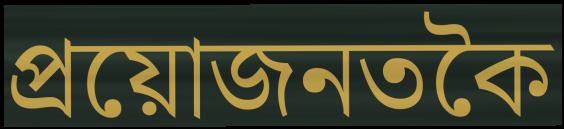
প্ৰয়োজনতকৈ